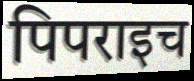
पिपराइच